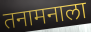
तनामनाला